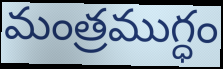
మంత్రముగ్ధం